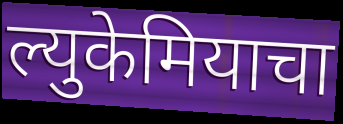
ल्युकेमियाचा